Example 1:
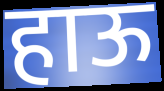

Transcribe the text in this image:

हाऊ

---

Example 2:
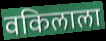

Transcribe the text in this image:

वकिलाला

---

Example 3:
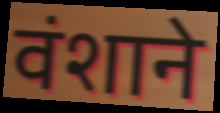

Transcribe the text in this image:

वंशाने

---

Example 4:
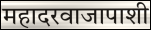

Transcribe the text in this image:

महादरवाजापाशी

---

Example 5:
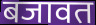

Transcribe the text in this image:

बजावत